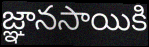
జ్ఞానసాయికి